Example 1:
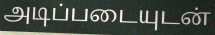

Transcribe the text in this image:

அடிப்படையுடன்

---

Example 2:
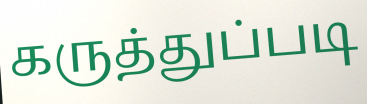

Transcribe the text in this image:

கருத்துப்படி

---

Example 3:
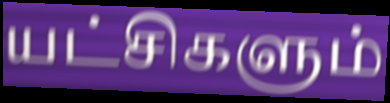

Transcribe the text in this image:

யட்சிகளும்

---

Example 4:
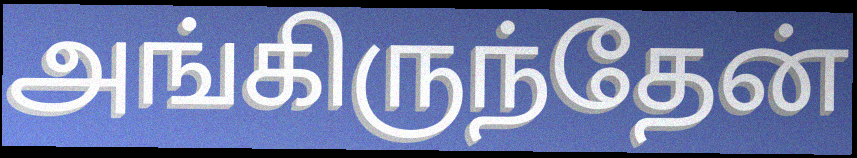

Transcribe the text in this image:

அங்கிருந்தேன்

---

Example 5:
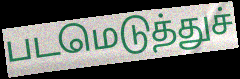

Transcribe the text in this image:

படமெடுத்துச்